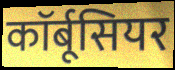
कॉर्बूसियर